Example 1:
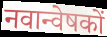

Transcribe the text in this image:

नवान्वेषकों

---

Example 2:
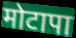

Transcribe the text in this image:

मोटापा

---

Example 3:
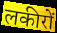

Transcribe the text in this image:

लकीरों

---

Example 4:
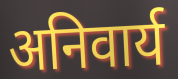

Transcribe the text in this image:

अनिवार्य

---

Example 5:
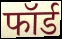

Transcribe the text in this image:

फॉर्ड